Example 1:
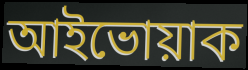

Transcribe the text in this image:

আইভোয়াক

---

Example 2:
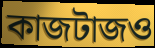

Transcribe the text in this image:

কাজটাজও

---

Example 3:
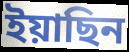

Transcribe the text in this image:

ইয়াছিন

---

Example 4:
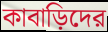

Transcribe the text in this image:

কাবাড়িদের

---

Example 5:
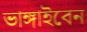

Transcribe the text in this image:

ভাঙ্গাইবেন